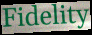
Fidelity